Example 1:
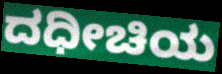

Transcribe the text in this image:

ದಧೀಚಿಯ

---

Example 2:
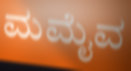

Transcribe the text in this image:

ಮಮೈವ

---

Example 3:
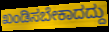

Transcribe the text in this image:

ಖಂಡಿಸಬೇಕಾದದ್ದು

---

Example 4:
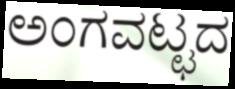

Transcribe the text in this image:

ಅಂಗವಟ್ಟದ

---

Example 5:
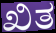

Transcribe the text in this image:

ಖಿತ